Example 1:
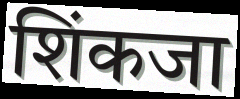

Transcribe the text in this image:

शिंकजा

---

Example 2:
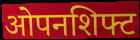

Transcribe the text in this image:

ओपनशिफ्ट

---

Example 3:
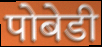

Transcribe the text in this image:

पोबेडी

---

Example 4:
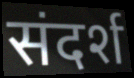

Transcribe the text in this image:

संदर्श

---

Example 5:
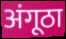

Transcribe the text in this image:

अंगूठा